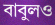
বাবুলও